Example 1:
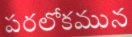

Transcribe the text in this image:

పరలోకమున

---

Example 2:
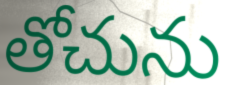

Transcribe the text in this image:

తోచును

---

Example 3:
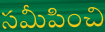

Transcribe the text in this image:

సమీపించి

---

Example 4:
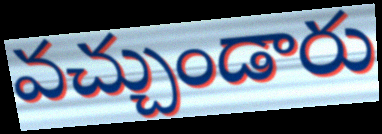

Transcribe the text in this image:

వచ్చుండారు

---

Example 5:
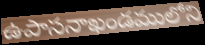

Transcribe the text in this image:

ఉపాసనాఖండములోని